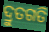
ଦ୍ରୁତଗତି